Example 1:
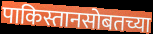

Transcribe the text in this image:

पाकिस्तानसोबतच्या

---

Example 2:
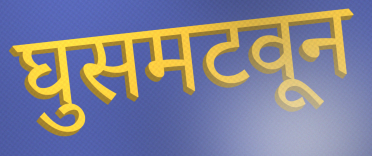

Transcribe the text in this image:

घुसमटवून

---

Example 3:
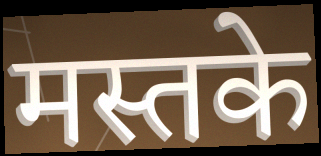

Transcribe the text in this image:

मस्तके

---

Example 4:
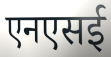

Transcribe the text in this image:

एनएसई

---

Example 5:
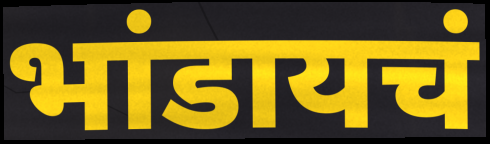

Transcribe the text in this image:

भांडायचं